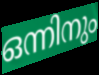
ഒന്നിനും